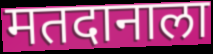
मतदानाला